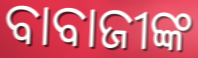
ବାବାଜୀଙ୍କ